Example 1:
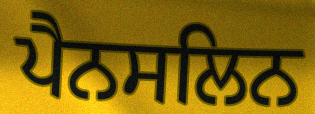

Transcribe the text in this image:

ਪੈਨਸਲਿਨ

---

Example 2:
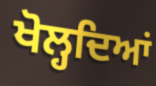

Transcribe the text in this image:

ਖੋਲ੍ਹਦਿਆਂ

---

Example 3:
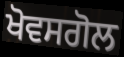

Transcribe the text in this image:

ਖੋਵਸਗੋਲ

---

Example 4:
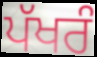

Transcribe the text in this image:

ਪੱਖਰੰ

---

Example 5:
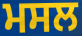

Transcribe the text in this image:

ਮਸਲ